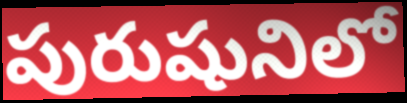
పురుషునిలో